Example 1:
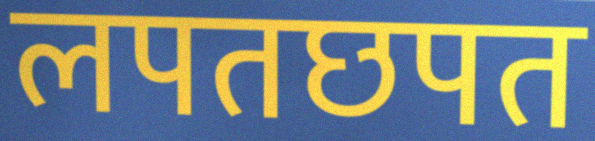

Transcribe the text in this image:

लपतछपत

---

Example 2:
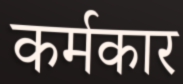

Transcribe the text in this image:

कर्मकार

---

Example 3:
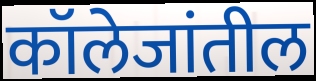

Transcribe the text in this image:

कॉलेजांतील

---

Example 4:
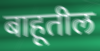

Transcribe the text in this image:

बाहूतील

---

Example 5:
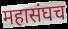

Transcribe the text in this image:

महासंघच